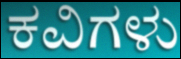
ಕವಿಗಳು